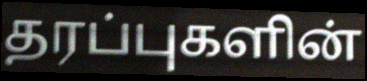
தரப்புகளின்